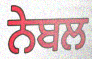
ਨੇਬਲ